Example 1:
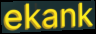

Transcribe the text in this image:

ekank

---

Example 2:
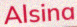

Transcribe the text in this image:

Alsina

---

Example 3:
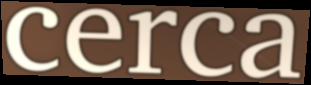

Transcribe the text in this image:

cerca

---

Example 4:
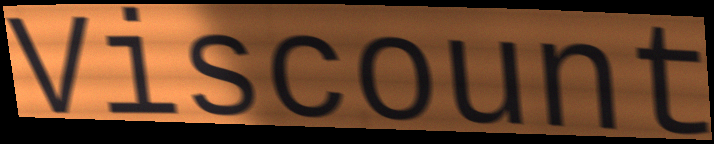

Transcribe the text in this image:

Viscount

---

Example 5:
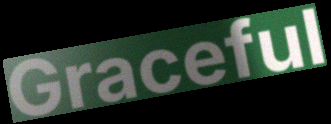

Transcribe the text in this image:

Graceful